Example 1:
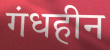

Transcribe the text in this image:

गंधहीन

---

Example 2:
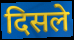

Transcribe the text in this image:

दिसले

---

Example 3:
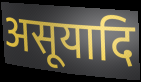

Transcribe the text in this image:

असूयादि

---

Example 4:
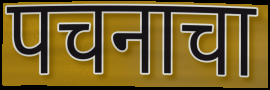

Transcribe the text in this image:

पचनाचा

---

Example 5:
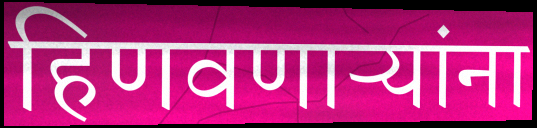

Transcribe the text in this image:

हिणवणाऱ्यांना